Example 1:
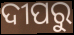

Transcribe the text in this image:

ଦୀପରୁ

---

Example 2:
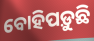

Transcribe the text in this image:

ବୋହିପଡ଼ୁଛି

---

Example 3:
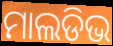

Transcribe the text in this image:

ମାଲଡିଭ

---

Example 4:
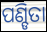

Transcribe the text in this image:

ପଣ୍ଡିତା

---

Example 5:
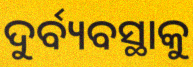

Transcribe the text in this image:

ଦୁର୍ବ୍ୟବସ୍ଥାକୁ